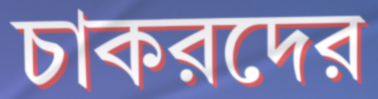
চাকরদের